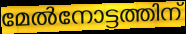
മേൽനോട്ടത്തിന്